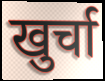
खुर्चा